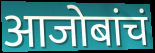
आजोबांचं